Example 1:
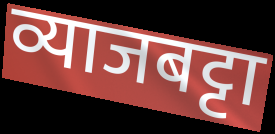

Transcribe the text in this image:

व्याजबट्टा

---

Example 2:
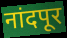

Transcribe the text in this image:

नांदपूर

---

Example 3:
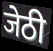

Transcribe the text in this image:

जेठी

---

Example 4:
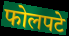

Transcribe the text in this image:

फोलपटे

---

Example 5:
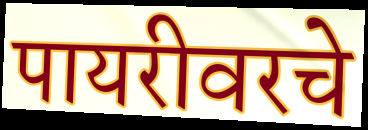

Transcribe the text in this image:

पायरीवरचे